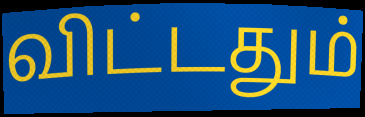
விட்டதும்